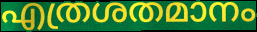
എത്രശതമാനം